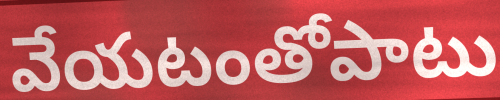
వేయటంతోపాటు